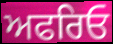
ਅਫਰਿਓ